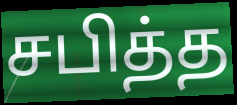
சபித்த